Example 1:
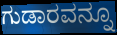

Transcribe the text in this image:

ಗುಡಾರವನ್ನೂ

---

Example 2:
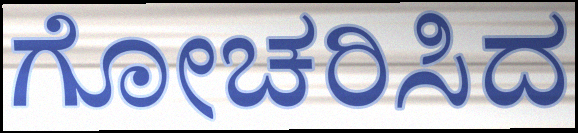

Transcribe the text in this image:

ಗೋಚರಿಸಿದ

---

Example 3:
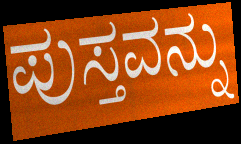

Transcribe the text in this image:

ಪುಸ್ತವನ್ನು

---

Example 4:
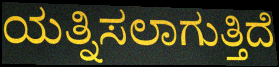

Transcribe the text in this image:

ಯತ್ನಿಸಲಾಗುತ್ತಿದೆ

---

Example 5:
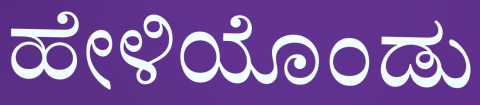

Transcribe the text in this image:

ಹೇಳಿಯೊಂಡು